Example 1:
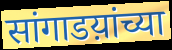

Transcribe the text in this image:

सांगाडय़ांच्या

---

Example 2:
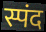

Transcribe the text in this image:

स्पंद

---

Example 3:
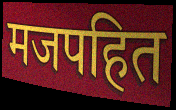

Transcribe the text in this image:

मजपहित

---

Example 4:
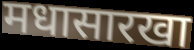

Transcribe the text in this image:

मधासारखा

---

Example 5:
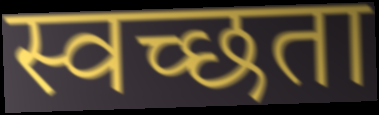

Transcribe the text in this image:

स्वच्छता